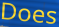
Does